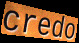
credo